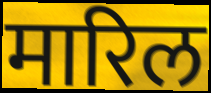
मारिल